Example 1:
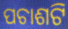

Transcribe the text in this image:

ପଚାଶଟି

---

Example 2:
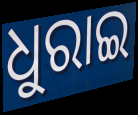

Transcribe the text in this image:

ଧୁରାଇ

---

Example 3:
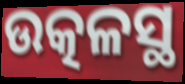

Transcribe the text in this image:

ଉତ୍କଳସ୍ଥ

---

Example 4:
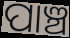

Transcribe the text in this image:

ପାଞ୍ଚ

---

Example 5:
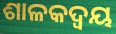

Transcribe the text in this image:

ଶାଳକଦ୍ୱୟ